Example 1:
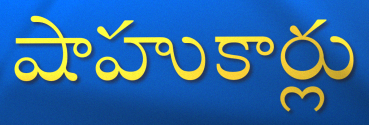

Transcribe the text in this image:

షాహుకార్లు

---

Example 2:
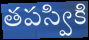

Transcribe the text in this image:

తపస్వికి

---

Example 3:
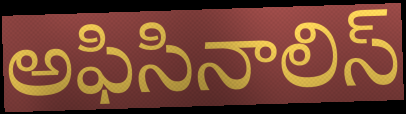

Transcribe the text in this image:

అఫిసినాలిస్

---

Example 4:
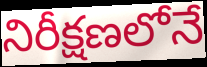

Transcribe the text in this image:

నిరీక్షణలోనే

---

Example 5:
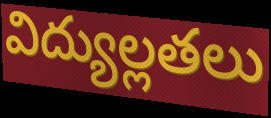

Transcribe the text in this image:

విద్యుల్లతలు